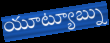
యూట్యూబ్ను